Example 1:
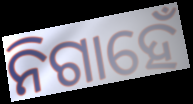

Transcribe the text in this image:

ନିଗାହେଁ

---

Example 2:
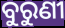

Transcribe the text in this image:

ବୁରୁଣୀ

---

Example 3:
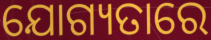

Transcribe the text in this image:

ଯୋଗ୍ୟତାରେ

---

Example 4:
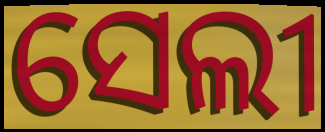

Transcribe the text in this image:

ସେଲୀ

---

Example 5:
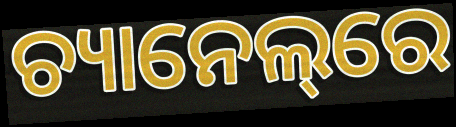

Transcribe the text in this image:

ଚ୍ୟାନେଲ୍‌ରେ